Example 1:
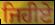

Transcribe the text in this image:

ਜਿਹੀਏ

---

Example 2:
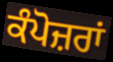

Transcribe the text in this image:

ਕੰਪੋਜ਼ਰਾਂ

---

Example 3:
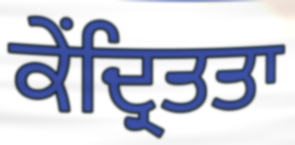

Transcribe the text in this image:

ਕੇਂਦ੍ਰਿਤਤਾ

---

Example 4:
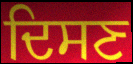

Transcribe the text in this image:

ਦਿਸਣ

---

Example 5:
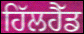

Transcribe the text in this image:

ਹਿੱਲਹੈੱਡ